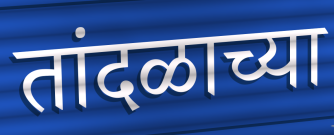
तांदळाच्या